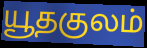
யூதகுலம்